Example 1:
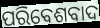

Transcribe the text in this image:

ପରିବେଶବାଦ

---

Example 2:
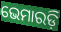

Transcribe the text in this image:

ଭେମାରଡ଼ି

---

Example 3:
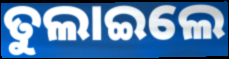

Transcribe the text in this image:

ତୁଲାଇଲେ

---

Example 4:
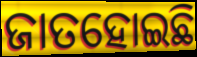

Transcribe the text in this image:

ଜାତହୋଇଛି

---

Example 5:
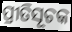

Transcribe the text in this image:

ପ୍ରୀତିସୂଚକ